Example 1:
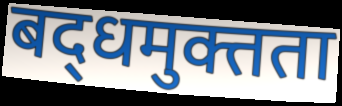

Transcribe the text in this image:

बद्धमुक्तता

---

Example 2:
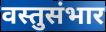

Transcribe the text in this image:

वस्तुसंभार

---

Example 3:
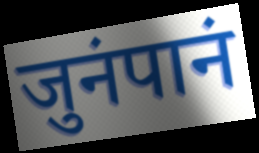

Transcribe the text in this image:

जुनंपानं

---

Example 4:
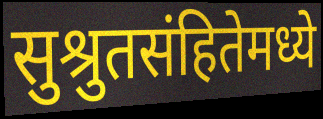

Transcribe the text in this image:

सुश्रुतसंहितेमध्ये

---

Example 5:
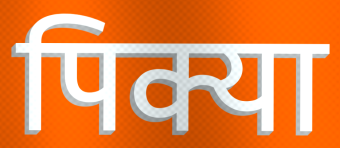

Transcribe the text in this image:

पिक्या